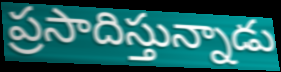
ప్రసాదిస్తున్నాడు